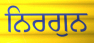
ਨਿਰਗੁਨ